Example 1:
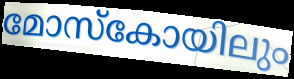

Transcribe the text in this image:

മോസ്കോയിലും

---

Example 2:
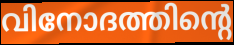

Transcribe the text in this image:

വിനോദത്തിന്റെ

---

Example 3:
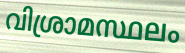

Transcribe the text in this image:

വിശ്രാമസ്ഥലം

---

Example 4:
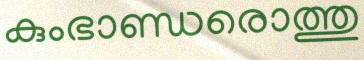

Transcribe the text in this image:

കുംഭാണ്ഡരൊത്തു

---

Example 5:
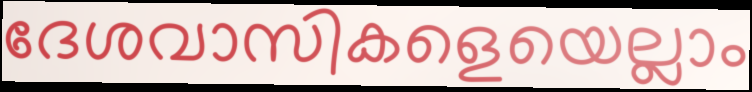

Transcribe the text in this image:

ദേശവാസികളെയെല്ലാം